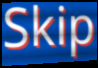
Skip